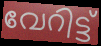
വേറിട്ട്